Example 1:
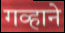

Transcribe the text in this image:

गव्हाने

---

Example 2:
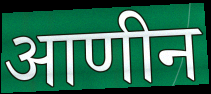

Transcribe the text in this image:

आणीन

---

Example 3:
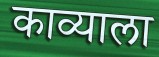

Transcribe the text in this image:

काव्याला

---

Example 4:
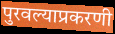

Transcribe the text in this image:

पुरवल्याप्रकरणी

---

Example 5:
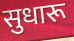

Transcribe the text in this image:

सुधारू